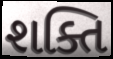
શક્તિ